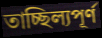
তাচ্ছিল্যপূর্ণ